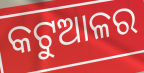
କଟୁଆଳର